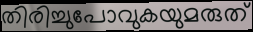
തിരിച്ചുപോവുകയുമരുത്